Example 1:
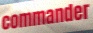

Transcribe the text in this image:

commander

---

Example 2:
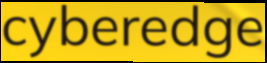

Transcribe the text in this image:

cyberedge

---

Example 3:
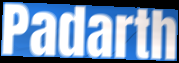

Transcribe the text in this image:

Padarth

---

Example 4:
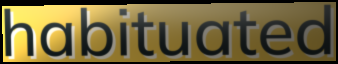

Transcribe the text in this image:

habituated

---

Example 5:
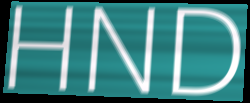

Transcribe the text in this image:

HND